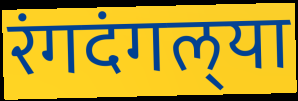
रंगदंगल्या